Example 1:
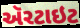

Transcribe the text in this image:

ઍરટાઇટ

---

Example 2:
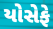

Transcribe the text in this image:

યોસેફે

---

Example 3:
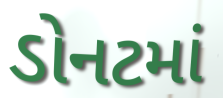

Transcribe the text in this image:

ડોનટમાં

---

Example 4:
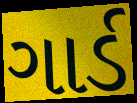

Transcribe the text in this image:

ગાર્ડ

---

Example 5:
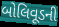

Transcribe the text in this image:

બોલિવૂડની